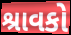
શ્રાવકો